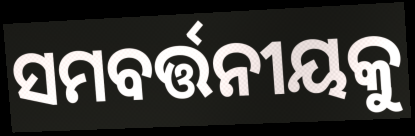
ସମବର୍ତ୍ତନୀୟକୁ